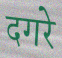
दगरे